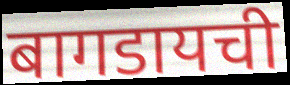
बागडायची